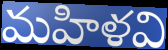
మహిళవి